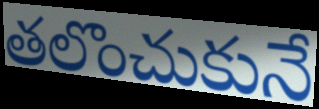
తలొంచుకునే